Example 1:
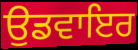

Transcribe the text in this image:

ਉਡਵਾਇਰ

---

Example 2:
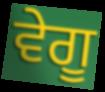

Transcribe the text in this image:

ਵੇਗੂ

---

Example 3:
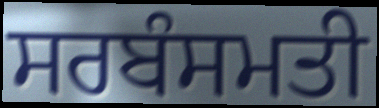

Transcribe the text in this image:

ਸਰਬੰਸਮਤੀ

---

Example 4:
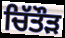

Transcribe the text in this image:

ਚਿੱਤੌੜ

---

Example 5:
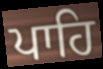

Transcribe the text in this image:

ਪਾਹਿ